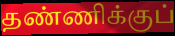
தண்ணிக்குப்